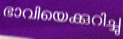
ഭാവിയെക്കുറിച്ചു